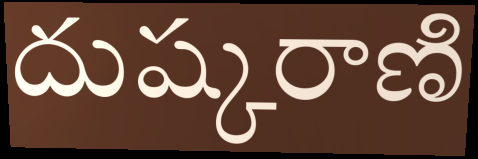
దుష్కరాణి